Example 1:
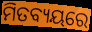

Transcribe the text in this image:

ମିତବ୍ୟୟରେ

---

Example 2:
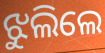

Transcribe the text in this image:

ଝୁଲିଲେ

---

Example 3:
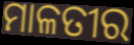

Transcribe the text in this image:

ମାଳତୀର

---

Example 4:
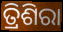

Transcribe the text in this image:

ତ୍ରିଶିରା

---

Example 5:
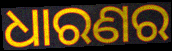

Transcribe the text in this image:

ଧାରଣର